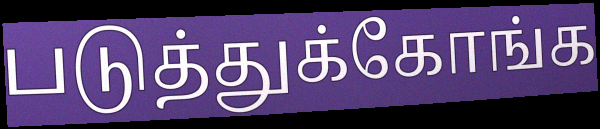
படுத்துக்கோங்க